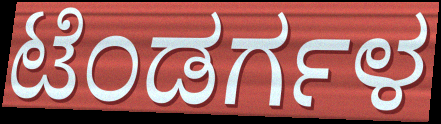
ಟೆಂಡರ್ಗಳ